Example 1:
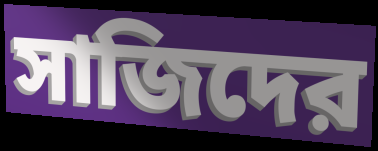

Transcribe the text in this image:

সাজিদের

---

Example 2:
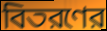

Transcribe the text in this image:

বিতরণের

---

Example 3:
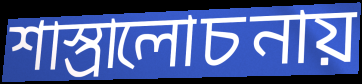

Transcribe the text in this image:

শাস্ত্রালোচনায়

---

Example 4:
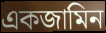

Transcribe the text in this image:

একজামিন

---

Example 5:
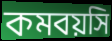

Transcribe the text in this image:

কমবয়সি